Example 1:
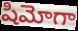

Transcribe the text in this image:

షిమోగా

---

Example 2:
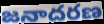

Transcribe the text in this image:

జనాదరణ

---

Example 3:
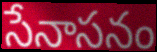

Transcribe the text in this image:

సేనాసనం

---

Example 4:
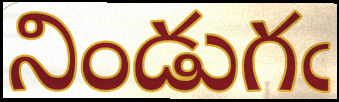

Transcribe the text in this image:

నిండుగఁ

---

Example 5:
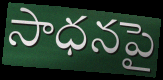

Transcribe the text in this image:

సాధనపై